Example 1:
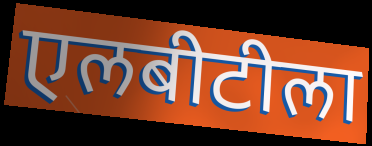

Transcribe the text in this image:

एलबीटीला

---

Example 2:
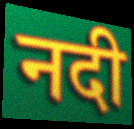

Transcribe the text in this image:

नदी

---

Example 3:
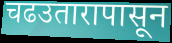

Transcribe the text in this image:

चढउतारापासून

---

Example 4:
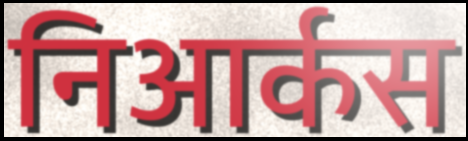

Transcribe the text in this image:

निआर्कस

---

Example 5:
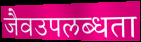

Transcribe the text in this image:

जैवउपलब्धता